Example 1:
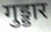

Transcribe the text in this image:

गुड्डार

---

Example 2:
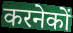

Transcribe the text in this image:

करनेकों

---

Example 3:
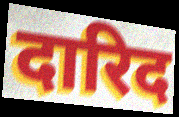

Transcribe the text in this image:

दारिद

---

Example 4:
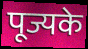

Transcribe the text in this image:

पूज्यके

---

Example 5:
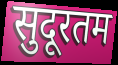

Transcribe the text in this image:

सुदूरतम